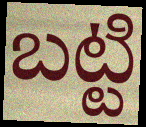
బట్టి